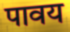
पावय